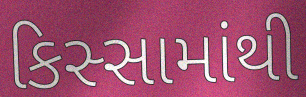
કિસ્સામાંથી